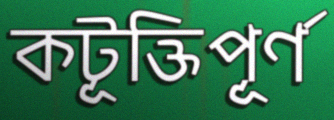
কটূক্তিপূর্ণ